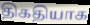
திகதியாக